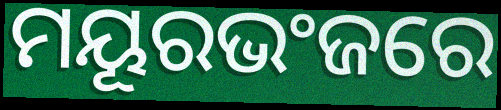
ମୟୂରଭଂଜରେ